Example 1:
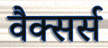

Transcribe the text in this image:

वैक्सर्स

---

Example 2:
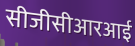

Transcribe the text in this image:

सीजीसीआरआई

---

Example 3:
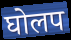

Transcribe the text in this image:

घोलप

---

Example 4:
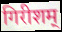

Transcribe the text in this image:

गिरीशम्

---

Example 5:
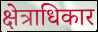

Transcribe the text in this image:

क्षेत्राधिकार